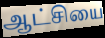
ஆட்சியை